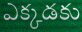
ఎక్కడకు